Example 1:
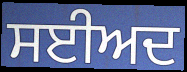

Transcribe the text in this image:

ਸਈਅਦ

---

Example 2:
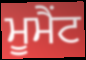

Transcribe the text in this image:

ਮੂਮੈਂਟ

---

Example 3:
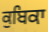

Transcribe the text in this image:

ਕੁਬਿਕਾ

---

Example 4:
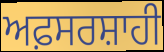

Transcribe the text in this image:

ਅਫ਼ਸਰਸ਼ਾਹੀ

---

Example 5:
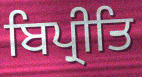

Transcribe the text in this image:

ਬਿਪ੍ਰੀਤਿ